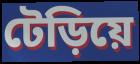
টেড়িয়ে